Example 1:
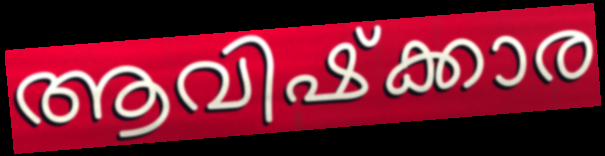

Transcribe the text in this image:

ആവിഷ്‌ക്കാര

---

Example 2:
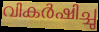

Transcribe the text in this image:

വികർഷിച്ചു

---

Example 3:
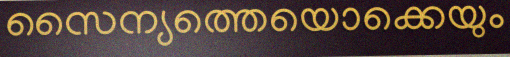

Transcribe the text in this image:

സൈന്യത്തെയൊക്കെയും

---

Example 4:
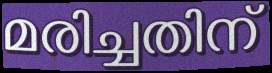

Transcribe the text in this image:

മരിച്ചതിന്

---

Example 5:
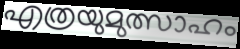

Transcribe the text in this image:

എത്രയുമുത്സാഹം